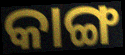
କାଙ୍ଗ